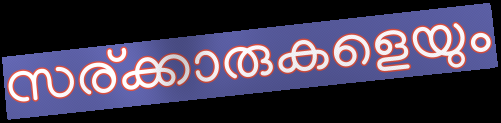
സര്ക്കാരുകളെയും